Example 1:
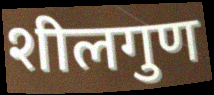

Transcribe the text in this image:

शीलगुण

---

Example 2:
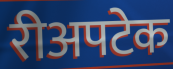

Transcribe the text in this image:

रीअपटेक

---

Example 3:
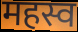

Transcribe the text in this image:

महस्व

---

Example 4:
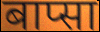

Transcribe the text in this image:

बाप्सा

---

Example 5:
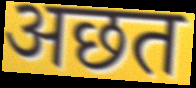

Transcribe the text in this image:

अछत